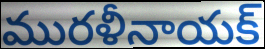
మురళీనాయక్